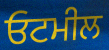
ਓਟਮੀਲ